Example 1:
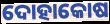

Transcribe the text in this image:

ଦୋହାକୋଷ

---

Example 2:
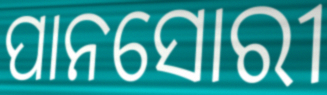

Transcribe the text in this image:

ପାନସୋରୀ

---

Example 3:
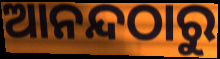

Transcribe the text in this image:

ଆନନ୍ଦଠାରୁ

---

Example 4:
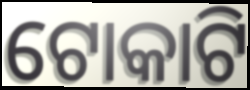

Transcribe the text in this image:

ଟୋକାଟି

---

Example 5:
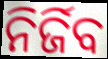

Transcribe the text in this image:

ନିର୍ଜିବ